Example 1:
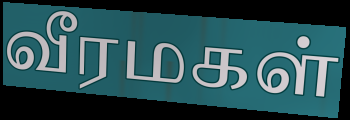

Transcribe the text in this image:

வீரமகள்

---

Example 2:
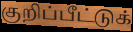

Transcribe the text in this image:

குறிப்பீட்டுக்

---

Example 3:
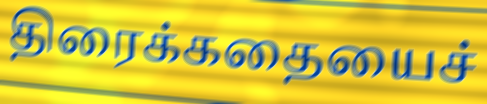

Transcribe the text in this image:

திரைக்கதையைச்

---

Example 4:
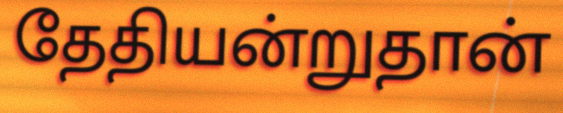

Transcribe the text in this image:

தேதியன்றுதான்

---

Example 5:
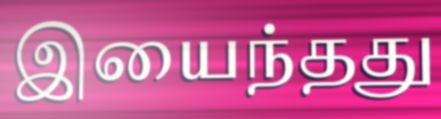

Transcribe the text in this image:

இயைந்தது